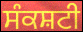
ਸੰਕਸ਼ਟੀ